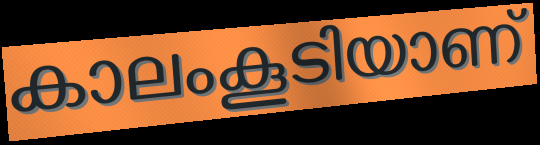
കാലംകൂടിയാണ്